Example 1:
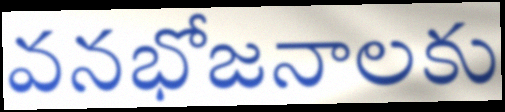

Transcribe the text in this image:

వనభోజనాలకు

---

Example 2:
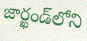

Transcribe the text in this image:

జార్ఖండ్‌లోని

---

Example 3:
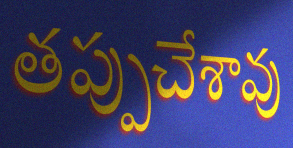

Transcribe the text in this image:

తప్పుచేశావు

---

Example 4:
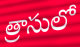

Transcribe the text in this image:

త్రాసులో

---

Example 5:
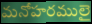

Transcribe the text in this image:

మనోహరములై